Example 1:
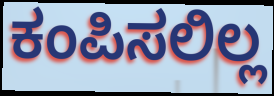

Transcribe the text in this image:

ಕಂಪಿಸಲಿಲ್ಲ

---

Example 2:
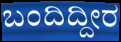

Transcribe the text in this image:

ಬಂದಿದ್ದೀರ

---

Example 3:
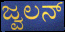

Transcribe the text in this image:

ಜ್ವಲನ್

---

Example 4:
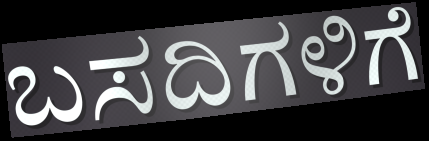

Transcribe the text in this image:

ಬಸದಿಗಳಿಗೆ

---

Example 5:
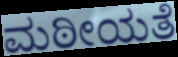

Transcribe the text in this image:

ಮಠೀಯತೆ